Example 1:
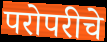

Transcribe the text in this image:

परोपरीचे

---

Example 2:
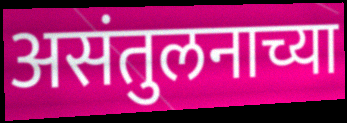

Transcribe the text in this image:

असंतुलनाच्या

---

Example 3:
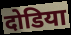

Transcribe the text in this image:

दोडिया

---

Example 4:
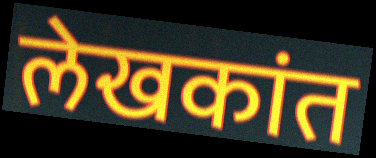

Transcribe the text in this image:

लेखकांत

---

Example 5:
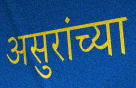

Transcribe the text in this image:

असुरांच्या